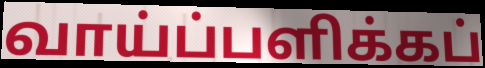
வாய்ப்பளிக்கப்